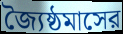
জ্যৈষ্ঠমাসের